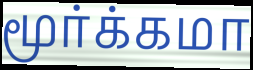
மூர்க்கமா